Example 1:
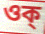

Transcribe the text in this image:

ওক্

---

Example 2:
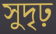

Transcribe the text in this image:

সুদৃঢ়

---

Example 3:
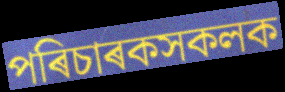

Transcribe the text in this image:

পৰিচাৰকসকলক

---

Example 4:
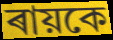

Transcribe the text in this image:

ৰায়কে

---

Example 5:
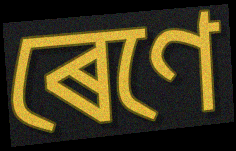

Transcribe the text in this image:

ৰেণে